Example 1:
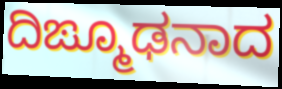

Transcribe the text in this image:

ದಿಙ್ಮೂಢನಾದ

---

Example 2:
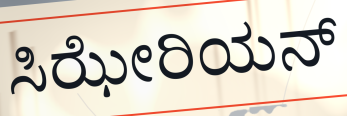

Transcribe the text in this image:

ಸಿಝೇರಿಯನ್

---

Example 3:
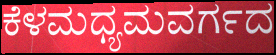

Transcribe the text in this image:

ಕೆಳಮಧ್ಯಮವರ್ಗದ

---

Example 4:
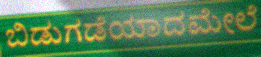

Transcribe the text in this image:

ಬಿಡುಗಡೆಯಾದಮೇಲೆ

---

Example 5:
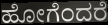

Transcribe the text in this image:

ಹೋಗೆಂದರೆ